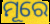
ମୂରେ